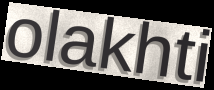
olakhti